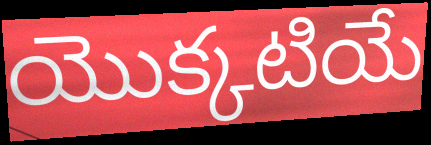
యొక్కటియే